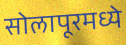
सोलापूरमध्ये